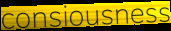
consiousness